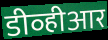
डीव्हीआर